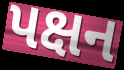
પક્ષન